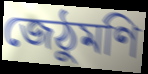
জেঠুমণি